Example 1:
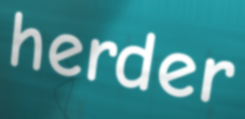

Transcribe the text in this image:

herder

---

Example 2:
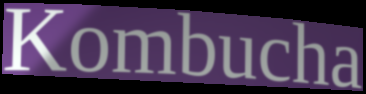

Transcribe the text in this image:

Kombucha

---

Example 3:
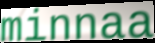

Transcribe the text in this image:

minnaa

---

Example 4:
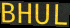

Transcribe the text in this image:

BHUL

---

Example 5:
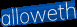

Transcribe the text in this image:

alloweth